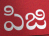
పిజి